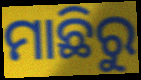
ମାଛିରୁ